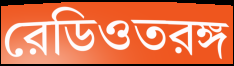
রেডিওতরঙ্গ